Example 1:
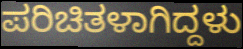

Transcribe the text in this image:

ಪರಿಚಿತಳಾಗಿದ್ದಳು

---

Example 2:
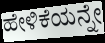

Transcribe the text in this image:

ಹೇಳಿಕೆಯನ್ನೇ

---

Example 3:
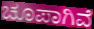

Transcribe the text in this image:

ಚೂಪಾಗಿವೆ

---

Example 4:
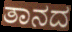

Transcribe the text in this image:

ತಾನದ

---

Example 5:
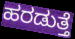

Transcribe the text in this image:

ಹರಡುತ್ತೆ